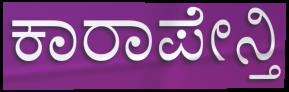
ಕಾರಾಪೇನ್ತಿ